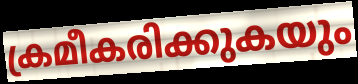
ക്രമീകരിക്കുകയും